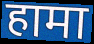
हामा